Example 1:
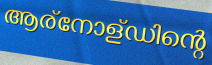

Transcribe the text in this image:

ആര്നോള്ഡിന്റെ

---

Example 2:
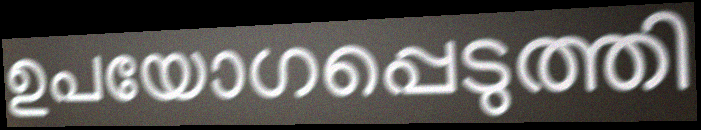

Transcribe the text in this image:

ഉപയോഗപ്പെടുത്തി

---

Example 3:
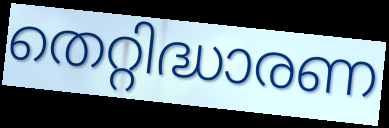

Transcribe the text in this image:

തെറ്റിദ്ധാരണ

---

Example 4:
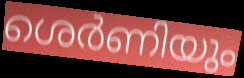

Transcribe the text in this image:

ശെർണിയും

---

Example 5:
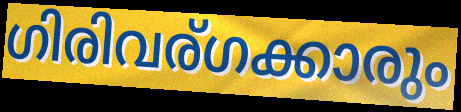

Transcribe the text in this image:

ഗിരിവര്ഗക്കാരും